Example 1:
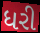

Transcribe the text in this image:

ધરી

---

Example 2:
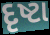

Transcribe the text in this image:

દૃષ્ટા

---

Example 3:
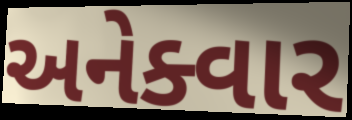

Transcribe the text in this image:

અનેક્વાર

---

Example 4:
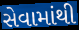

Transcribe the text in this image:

સેવામાંથી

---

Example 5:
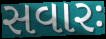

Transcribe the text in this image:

સવારઃ